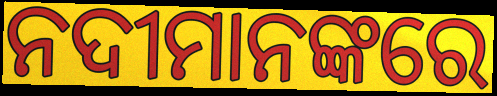
ନଦୀମାନଙ୍କରେ